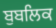
ਬੁਬਲਿਕ